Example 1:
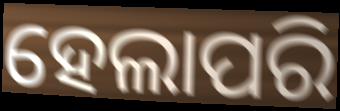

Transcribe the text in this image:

ହେଲାପରି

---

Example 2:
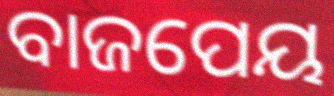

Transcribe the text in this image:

ବାଜପେୟ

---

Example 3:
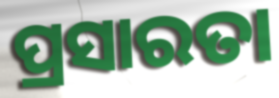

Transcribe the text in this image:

ପ୍ରସାରତା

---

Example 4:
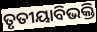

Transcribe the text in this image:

ତୃତୀୟାବିଭକ୍ତି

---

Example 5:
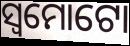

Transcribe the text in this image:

ସ୍ୱମୋଟୋ